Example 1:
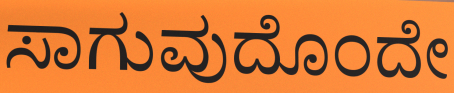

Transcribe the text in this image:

ಸಾಗುವುದೊಂದೇ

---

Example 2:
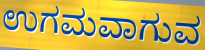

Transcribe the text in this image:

ಉಗಮವಾಗುವ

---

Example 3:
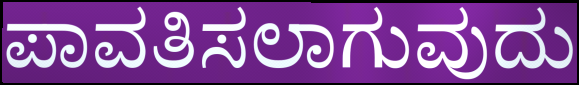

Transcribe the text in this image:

ಪಾವತಿಸಲಾಗುವುದು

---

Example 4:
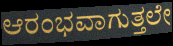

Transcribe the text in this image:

ಆರಂಭವಾಗುತ್ತಲೇ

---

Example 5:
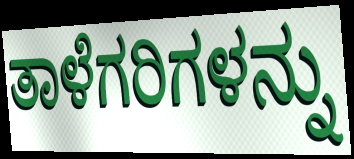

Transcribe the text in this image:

ತಾಳೆಗರಿಗಳನ್ನು